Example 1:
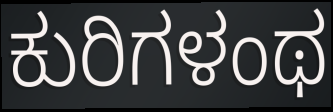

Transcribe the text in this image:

ಕುರಿಗಳಂಥ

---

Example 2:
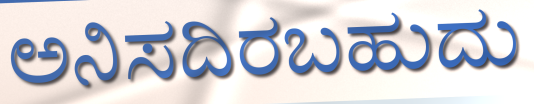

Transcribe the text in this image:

ಅನಿಸದಿರಬಹುದು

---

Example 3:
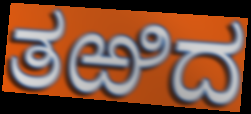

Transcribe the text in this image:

ತಱಿದ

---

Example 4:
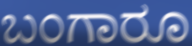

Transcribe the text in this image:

ಬಂಗಾರೂ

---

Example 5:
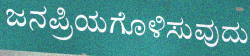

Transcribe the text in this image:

ಜನಪ್ರಿಯಗೊಳಿಸುವುದು